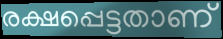
രക്ഷപ്പെട്ടതാണ്